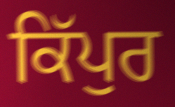
ਕਿੱਪੁਰ